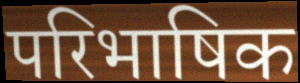
परिभाषिक